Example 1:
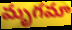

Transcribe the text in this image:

మృగమా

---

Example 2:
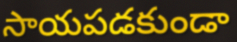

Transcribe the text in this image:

సాయపడకుండా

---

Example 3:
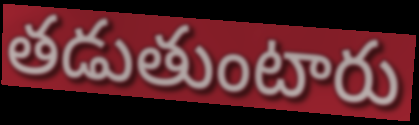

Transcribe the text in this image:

తడుతుంటారు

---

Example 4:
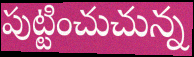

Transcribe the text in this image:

పుట్టించుచున్న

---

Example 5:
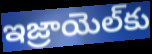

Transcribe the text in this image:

ఇజ్రాయెల్‌కు